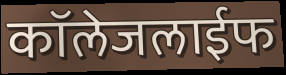
कॉलेजलाईफ